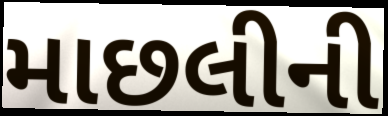
માછલીની